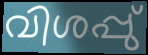
വിശപ്പു്